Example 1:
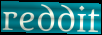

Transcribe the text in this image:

reddit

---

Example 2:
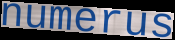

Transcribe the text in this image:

numerus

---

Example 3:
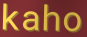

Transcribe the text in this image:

kaho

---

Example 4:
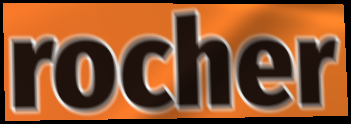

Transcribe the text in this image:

rocher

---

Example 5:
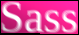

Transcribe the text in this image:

Sass